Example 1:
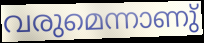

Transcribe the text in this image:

വരുമെന്നാണു്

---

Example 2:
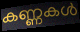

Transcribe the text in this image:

കണ്ണകൾ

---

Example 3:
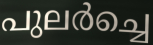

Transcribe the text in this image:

പുലർച്ചെ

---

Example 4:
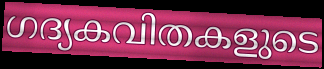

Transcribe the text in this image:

ഗദ്യകവിതകളുടെ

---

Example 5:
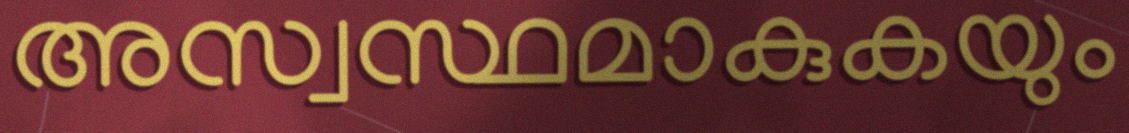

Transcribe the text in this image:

അസ്വസ്ഥമാകുകയും